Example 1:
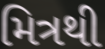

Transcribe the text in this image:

મિત્રથી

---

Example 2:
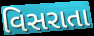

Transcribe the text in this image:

વિસરાતા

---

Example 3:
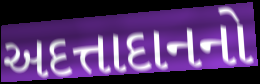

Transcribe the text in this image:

અદત્તાદાનનો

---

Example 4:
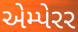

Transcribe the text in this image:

એમ્પેરર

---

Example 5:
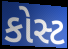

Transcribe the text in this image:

કોસ્ટ